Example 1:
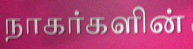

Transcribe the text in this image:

நாகர்களின்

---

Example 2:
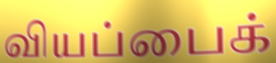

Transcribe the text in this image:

வியப்பைக்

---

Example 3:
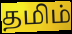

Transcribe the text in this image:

தமிம்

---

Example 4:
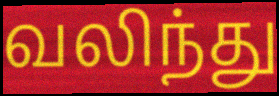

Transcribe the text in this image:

வலிந்து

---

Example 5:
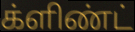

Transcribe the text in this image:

க்ளிண்ட்